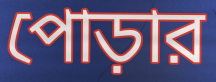
পোড়ার